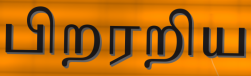
பிறரறிய